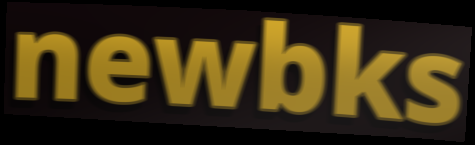
newbks